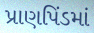
પ્રાણપિંડમાં